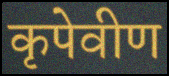
कृपेवीण